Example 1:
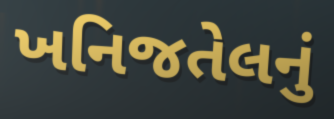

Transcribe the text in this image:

ખનિજતેલનું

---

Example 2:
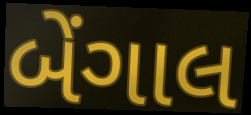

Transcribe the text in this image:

બેંગાલ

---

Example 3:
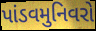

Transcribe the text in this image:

પાંડવમુનિવરો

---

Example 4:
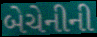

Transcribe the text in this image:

બેચેનીની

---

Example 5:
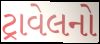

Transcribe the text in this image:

ટ્રાવેલનો